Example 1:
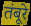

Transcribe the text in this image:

तंबूरे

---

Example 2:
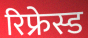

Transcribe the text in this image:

रिफ्रेस्ड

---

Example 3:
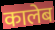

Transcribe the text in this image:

कालेब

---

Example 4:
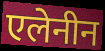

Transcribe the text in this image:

एलेनीन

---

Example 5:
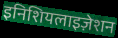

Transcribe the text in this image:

इनिशियलाइज़ेशन